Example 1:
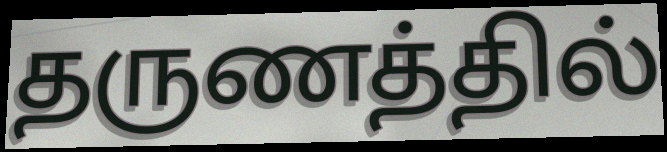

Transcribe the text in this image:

தருணத்தில்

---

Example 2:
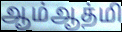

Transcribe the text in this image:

ஆம்ஆத்மி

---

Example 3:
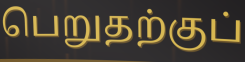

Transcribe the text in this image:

பெறுதற்குப்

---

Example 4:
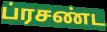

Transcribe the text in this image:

ப்ரசண்ட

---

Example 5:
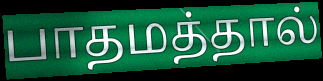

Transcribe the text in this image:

பாதமத்தால்